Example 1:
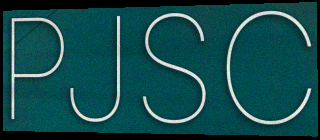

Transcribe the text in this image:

PJSC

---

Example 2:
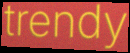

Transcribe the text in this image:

trendy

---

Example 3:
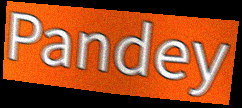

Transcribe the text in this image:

Pandey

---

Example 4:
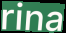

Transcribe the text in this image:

rina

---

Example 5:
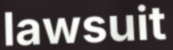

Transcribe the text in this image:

lawsuit